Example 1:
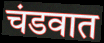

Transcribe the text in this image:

चंडवात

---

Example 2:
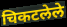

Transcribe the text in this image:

चिकटलेले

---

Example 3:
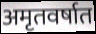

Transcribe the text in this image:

अमृतवर्षात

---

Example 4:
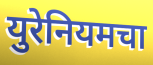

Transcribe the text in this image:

युरेनियमचा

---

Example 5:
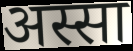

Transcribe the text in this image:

अस्सा